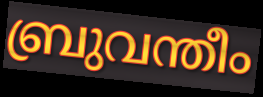
ബ്രുവന്തീം